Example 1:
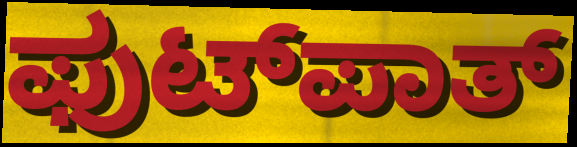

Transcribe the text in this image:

ಫುಟ್‍ಪಾತ್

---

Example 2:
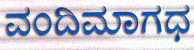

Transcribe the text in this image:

ವಂದಿಮಾಗಧ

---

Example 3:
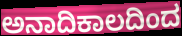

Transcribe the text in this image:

ಅನಾದಿಕಾಲದಿಂದ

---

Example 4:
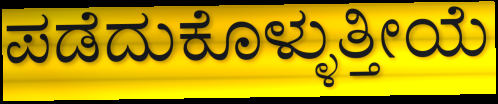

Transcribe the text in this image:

ಪಡೆದುಕೊಳ್ಳುತ್ತೀಯೆ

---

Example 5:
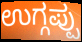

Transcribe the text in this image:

ಉಗ್ಗಪ್ಪು